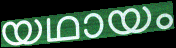
യഥായം